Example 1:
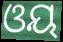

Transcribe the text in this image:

ଓୟ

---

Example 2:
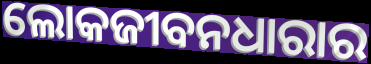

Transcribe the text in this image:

ଲୋକଜୀବନଧାରାର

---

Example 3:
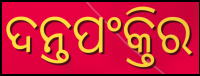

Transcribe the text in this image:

ଦନ୍ତପଂକ୍ତିର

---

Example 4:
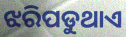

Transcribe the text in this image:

ଝରିପଡୁଥାଏ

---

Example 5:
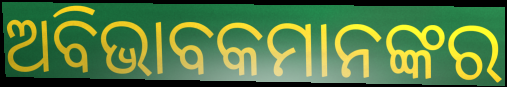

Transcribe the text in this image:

ଅବିଭାବକମାନଙ୍କର